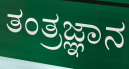
ತಂತ್ರಜ್ಞಾನ